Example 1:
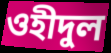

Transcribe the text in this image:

ওহীদুল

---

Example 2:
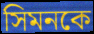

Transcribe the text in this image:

সিমনকে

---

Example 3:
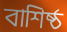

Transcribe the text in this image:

বাশিষ্ঠ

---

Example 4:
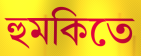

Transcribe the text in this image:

হুমকিতে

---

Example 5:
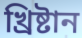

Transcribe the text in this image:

খ্রিষ্টান